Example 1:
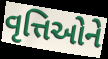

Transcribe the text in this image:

વૃત્તિઓને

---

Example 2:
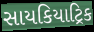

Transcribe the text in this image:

સાયકિયાટ્રિક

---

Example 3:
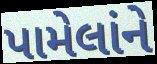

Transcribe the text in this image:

પામેલાંને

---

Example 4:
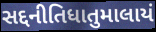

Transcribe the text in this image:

સદ્દનીતિધાતુમાલાયં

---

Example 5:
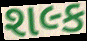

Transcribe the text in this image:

શલ્ક